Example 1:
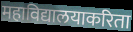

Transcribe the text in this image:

महाविद्यालयाकरिता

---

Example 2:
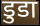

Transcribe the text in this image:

डुडा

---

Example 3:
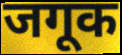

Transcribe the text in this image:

जगूक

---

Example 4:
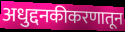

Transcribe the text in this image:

अधुद्दनकीकरणातून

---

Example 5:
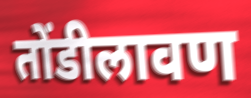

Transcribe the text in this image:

तोंडीलावण